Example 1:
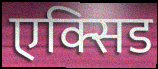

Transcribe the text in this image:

एक्सिड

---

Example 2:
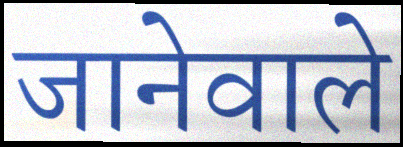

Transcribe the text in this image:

जानेवाले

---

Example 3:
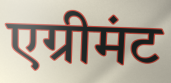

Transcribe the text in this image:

एग्रीमंट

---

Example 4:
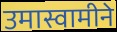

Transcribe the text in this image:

उमास्वामीने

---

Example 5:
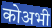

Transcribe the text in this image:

कोअभी